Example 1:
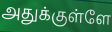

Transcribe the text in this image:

அதுக்குள்ளே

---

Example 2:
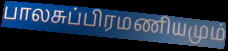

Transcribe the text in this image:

பாலசுப்பிரமணியமும்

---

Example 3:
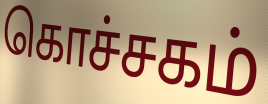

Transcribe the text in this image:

கொச்சகம்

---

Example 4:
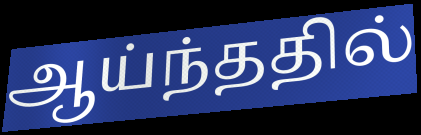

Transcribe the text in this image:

ஆய்ந்ததில்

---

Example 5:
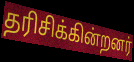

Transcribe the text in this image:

தரிசிக்கின்றனர்